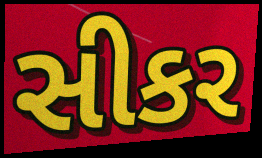
સીકર